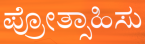
ಪ್ರೋತ್ಸಾಹಿಸು